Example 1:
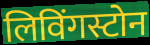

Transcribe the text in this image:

लिविंगस्टोन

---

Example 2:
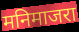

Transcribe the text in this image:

मनिमाजरा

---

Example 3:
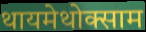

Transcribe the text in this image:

थायमेथोक्साम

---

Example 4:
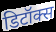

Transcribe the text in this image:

डिटॉक्स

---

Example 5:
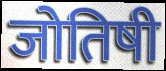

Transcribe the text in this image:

जोतिषी